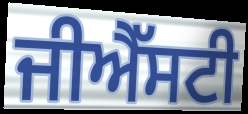
ਜੀਐੱਸਟੀ